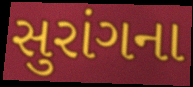
સુરાંગના